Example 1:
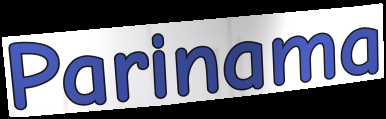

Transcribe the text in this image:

Parinama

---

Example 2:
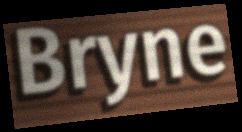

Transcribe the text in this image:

Bryne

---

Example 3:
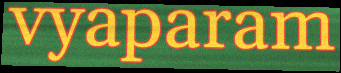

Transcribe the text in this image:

vyaparam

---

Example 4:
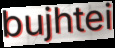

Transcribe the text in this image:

bujhtei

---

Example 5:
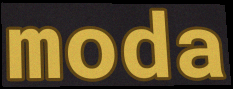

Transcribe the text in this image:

moda